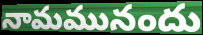
నామమునందు